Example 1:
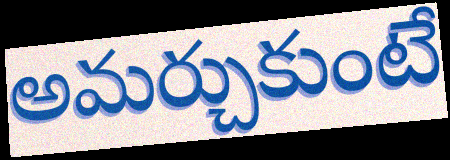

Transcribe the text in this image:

అమర్చుకుంటే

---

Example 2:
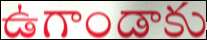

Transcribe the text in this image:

ఉగాండాకు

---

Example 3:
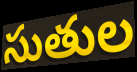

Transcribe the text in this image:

సుతుల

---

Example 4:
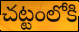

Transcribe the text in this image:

చట్టంలోకి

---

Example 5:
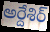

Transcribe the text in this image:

అర్దేశిర్